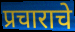
प्रचाराचे